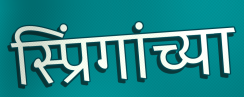
स्प्रिंगांच्या